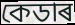
কেডাৰ